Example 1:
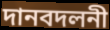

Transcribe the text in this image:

দানবদলনী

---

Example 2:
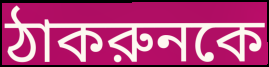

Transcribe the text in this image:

ঠাকরুনকে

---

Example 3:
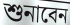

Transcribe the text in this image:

শুনাবেন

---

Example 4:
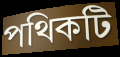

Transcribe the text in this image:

পথিকটি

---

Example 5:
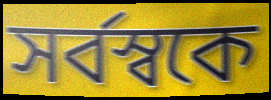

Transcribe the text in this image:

সর্বস্বকে